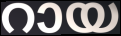
റായ